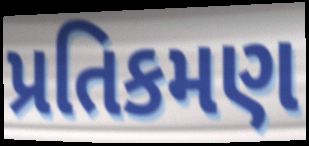
પ્રતિકમણ